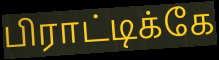
பிராட்டிக்கே